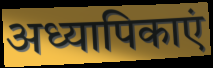
अध्यापिकाएं